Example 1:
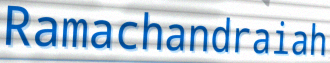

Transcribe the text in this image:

Ramachandraiah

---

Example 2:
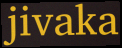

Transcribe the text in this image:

jivaka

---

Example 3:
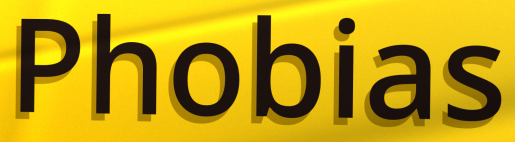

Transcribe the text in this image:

Phobias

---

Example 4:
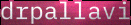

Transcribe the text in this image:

drpallavi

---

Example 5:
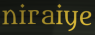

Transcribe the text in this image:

niraiye